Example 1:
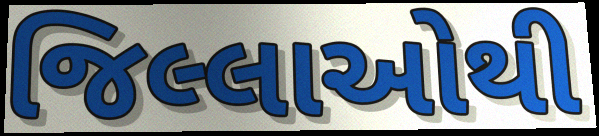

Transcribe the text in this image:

જિલ્લાઓથી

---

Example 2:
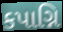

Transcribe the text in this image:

કપાગ્નિ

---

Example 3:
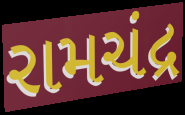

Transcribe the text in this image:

રામચંદ્ર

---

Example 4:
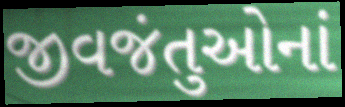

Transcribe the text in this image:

જીવજંતુઓનાં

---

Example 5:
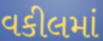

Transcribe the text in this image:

વકીલમાં